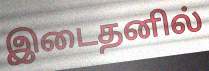
இடைதனில்